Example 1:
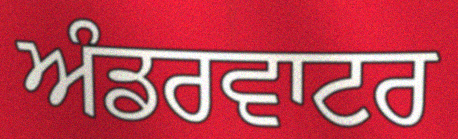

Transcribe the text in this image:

ਅੰਡਰਵਾਟਰ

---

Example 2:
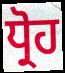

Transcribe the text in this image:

ਧ੍ਰੋਹ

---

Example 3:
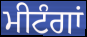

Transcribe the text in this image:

ਮੀਟੰਗਾਂ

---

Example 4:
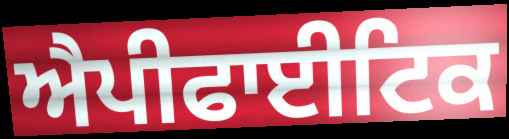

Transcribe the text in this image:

ਐਪੀਫਾਈਟਿਕ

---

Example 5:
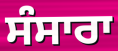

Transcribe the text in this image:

ਸੰਸਾਰਾ